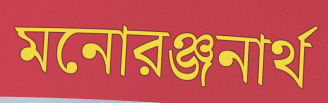
মনোরঞ্জনার্থ